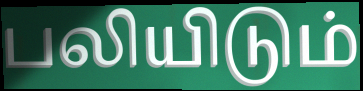
பலியிடும்